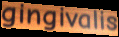
gingivalis